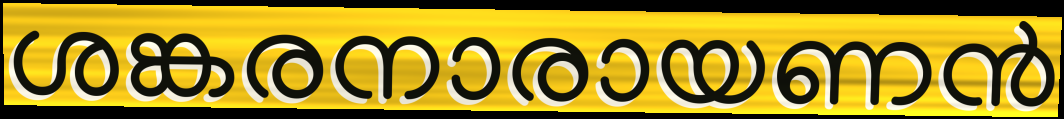
ശങ്കരനാരായണൻ